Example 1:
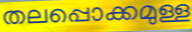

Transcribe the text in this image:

തലപ്പൊക്കമുള്ള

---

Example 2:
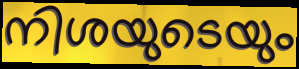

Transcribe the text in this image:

നിശയുടെയും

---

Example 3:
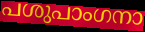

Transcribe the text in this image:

പശുപാംഗനാ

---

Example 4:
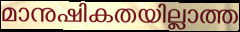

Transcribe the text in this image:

മാനുഷികതയില്ലാത്ത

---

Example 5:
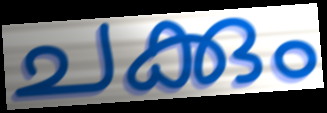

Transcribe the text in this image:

ചക്കും